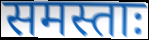
समस्ताः